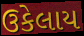
ઉકેલાય